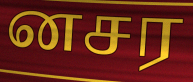
னசர